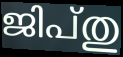
ജിപ്തു